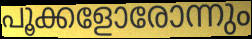
പൂക്കളോരോന്നും